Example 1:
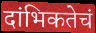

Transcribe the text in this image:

दांभिकतेचं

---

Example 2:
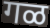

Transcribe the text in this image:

गळ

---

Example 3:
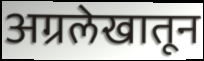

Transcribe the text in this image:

अग्रलेखातून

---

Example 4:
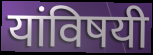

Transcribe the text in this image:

यांविषयी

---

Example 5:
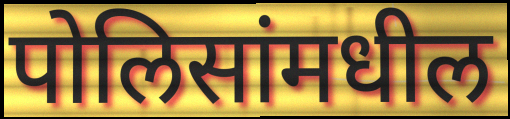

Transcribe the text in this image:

पोलिसांमधील